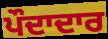
ਪੌਦਾਦਾਰ